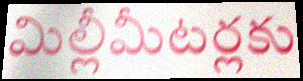
మిల్లీమీటర్లకు